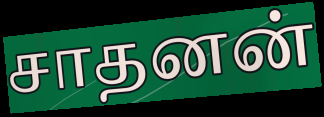
சாதனன்